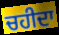
ਚਹੀਦਾ